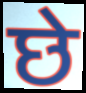
छे